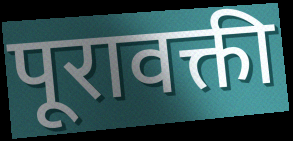
पूरावक्ती